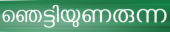
ഞെട്ടിയുണരുന്ന